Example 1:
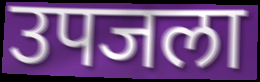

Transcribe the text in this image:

उपजला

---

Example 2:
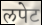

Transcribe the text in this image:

लपेट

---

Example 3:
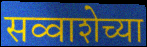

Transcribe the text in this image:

सव्वाशेच्या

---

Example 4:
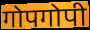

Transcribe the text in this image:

गोपगोपी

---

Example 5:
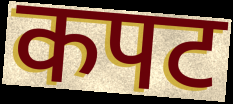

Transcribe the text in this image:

कपट